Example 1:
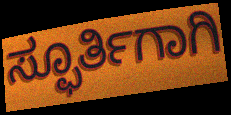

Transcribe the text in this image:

ಸ್ಫೂರ್ತಿಗಾಗಿ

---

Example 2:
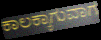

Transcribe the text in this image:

ಕಾಲಕ್ಕಾಗುವಾಗ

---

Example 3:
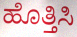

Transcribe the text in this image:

ಹೊತ್ತಿಸಿ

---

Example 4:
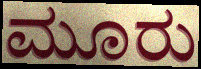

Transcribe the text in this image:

ಮೂರು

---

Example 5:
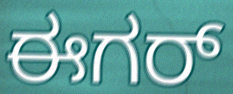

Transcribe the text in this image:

ಈಗರ್